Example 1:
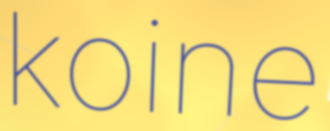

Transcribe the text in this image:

koine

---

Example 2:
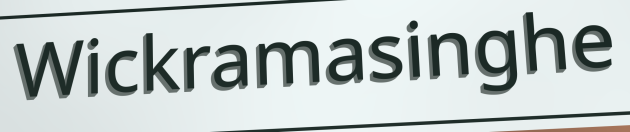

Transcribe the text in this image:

Wickramasinghe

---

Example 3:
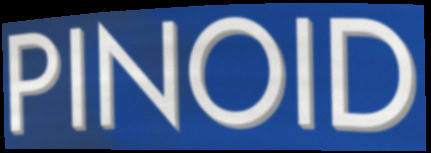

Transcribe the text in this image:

PINOID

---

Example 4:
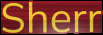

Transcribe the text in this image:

Sherr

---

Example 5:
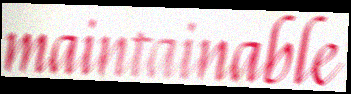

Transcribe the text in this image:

maintainable